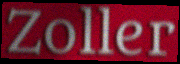
Zoller